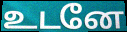
உடனே